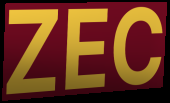
ZEC